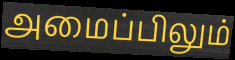
அமைப்பிலும்